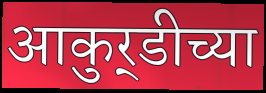
आकुर्डीच्या